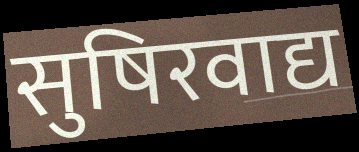
सुषिरवाद्य